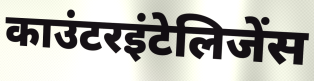
काउंटरइंटेलिजेंस